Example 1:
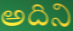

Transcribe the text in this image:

అదిని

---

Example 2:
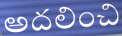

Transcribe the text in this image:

అదలించి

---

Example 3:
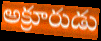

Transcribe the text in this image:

అక్రూరుడు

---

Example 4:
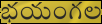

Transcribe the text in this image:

భయంగల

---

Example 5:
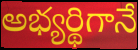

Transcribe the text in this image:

అభ్యర్థిగానే